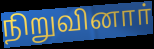
நிறுவினார்